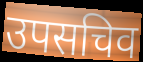
उपसचिव